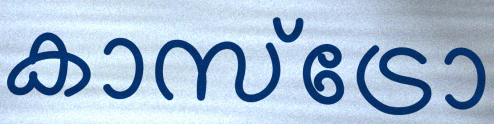
കാസ്ട്രോ